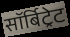
सॉर्बिट्रेट